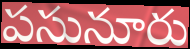
పసునూరు